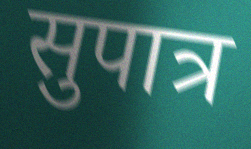
सुपात्र